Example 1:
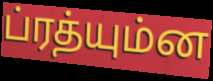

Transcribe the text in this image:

ப்ரத்யும்ன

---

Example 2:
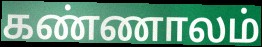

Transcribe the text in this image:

கண்ணாலம்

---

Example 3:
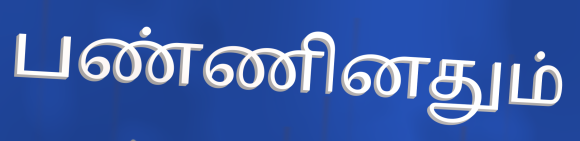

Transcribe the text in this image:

பண்ணினதும்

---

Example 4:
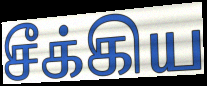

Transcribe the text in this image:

சீக்கிய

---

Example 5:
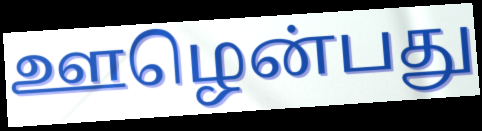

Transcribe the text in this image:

ஊழென்பது